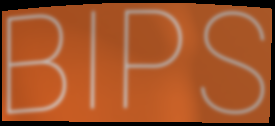
BIPS